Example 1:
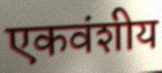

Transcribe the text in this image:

एकवंशीय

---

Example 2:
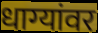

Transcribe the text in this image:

धाग्यांवर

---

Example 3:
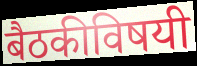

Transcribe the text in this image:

बैठकीविषयी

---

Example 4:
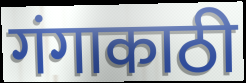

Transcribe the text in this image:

गंगाकाठी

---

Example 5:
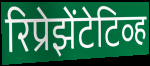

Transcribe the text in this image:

रिप्रेझेंटेटिव्ह